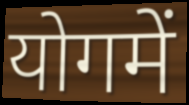
योगमें